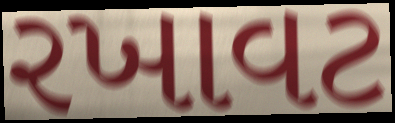
રખાવટ